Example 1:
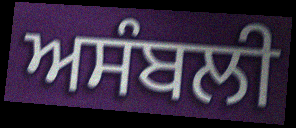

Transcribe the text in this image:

ਅਸੰਬਲੀ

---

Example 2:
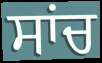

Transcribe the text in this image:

ਸਾਂਚ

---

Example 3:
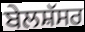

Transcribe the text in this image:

ਬੇਲਸ਼ੱਸਰ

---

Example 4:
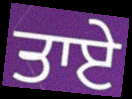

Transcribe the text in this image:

ਤਾਏ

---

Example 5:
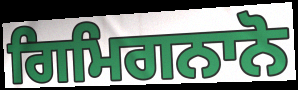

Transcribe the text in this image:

ਗਿਮਿਗਨਾਨੋ